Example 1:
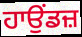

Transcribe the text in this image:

ਹਾਉਂਡਜ਼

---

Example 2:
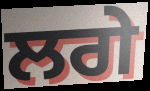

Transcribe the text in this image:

ਲਗੇ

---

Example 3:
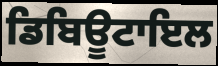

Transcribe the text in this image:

ਡਿਬਿਊਟਾਇਲ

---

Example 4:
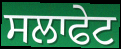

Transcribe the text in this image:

ਸਲਾਫੇਟ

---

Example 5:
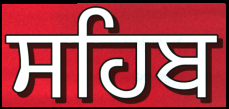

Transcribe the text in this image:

ਸਹਿਬ